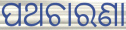
ପଥଚାରଣା